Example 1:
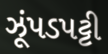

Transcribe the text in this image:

ઝૂંપડપટ્ટી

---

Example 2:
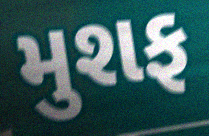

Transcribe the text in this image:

મુશફ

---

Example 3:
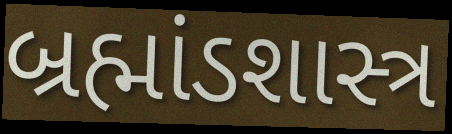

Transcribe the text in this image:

બ્રહ્માંડશાસ્ત્ર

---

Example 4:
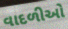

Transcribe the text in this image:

વાદળીઓ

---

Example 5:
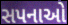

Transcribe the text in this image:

સપનાઓ